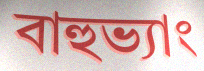
বাহুভ্যাং